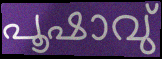
പൂഷാവു്